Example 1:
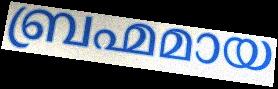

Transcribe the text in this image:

ബ്രഹ്മമായ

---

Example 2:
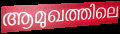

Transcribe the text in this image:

ആമുഖത്തിലെ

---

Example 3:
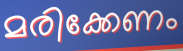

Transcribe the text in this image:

മരിക്കേണം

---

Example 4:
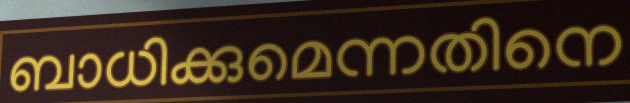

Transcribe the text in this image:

ബാധിക്കുമെന്നതിനെ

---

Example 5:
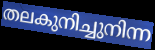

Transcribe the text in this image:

തലകുനിച്ചുനിന്ന